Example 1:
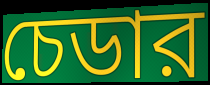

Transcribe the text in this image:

চেডার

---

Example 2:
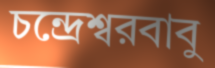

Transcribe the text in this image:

চন্দ্রেশ্বরবাবু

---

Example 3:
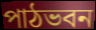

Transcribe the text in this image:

পাঠভবন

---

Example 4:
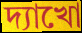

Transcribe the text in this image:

দ্যাখো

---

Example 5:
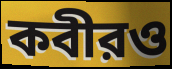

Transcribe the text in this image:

কবীরও